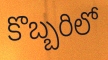
కొబ్బరిలో